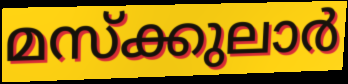
മസ്ക്കുലാർ